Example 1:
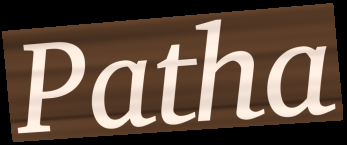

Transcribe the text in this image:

Patha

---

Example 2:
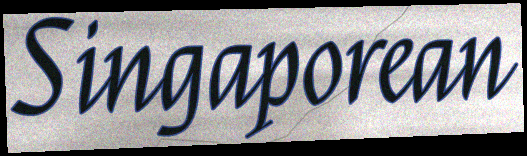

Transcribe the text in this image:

Singaporean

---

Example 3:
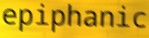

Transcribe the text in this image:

epiphanic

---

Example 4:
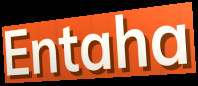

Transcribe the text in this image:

Entaha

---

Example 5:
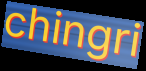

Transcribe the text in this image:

chingri